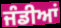
ਜੰਡੀਆਂ